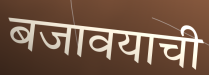
बजावयाची